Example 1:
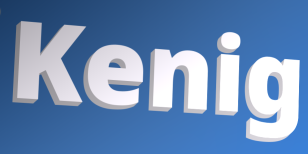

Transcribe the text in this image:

Kenig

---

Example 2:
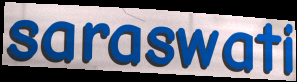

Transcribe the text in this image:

saraswati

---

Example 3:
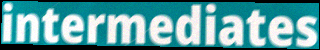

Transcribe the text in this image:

intermediates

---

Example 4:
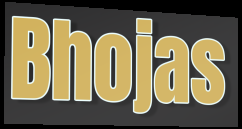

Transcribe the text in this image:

Bhojas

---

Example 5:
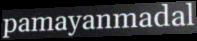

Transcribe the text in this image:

pamayanmadal